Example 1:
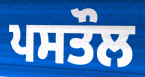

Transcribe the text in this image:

ਪਸਤੌਲ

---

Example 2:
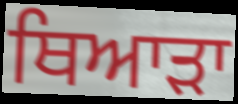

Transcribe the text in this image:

ਥਿਆੜਾ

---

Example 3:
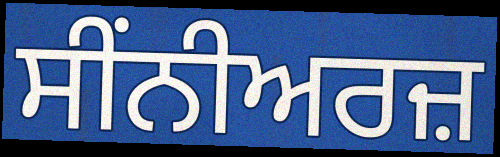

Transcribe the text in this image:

ਸੀਂਨੀਅਰਜ਼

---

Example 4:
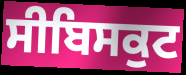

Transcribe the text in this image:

ਸੀਬਿਸਕੁਟ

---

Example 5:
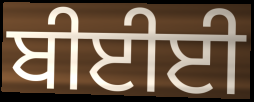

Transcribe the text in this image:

ਬੀਈਈ